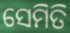
ସେମିତି